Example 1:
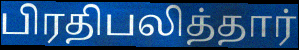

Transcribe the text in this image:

பிரதிபலித்தார்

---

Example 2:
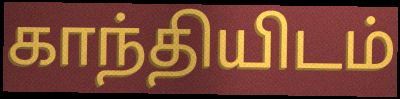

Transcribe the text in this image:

காந்தியிடம்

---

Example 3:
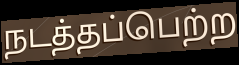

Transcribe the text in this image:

நடத்தப்பெற்ற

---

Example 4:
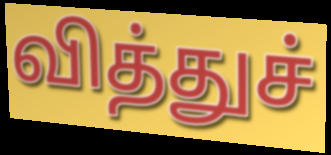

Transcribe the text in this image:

வித்துச்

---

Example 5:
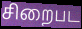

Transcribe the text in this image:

சிறைபட